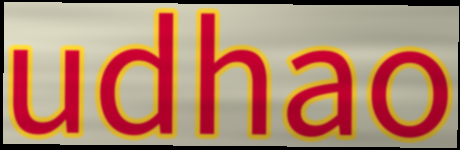
udhao